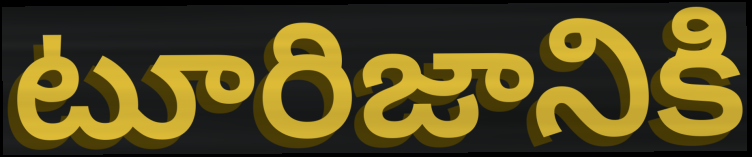
టూరిజానికి